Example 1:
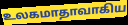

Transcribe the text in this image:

உலகமாதாவாகிய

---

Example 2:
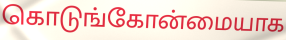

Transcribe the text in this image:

கொடுங்கோன்மையாக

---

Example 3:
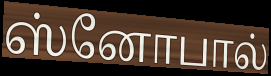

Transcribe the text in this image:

ஸ்னோபால்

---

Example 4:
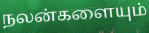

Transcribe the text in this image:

நலன்களையும்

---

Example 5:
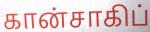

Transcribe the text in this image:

கான்சாகிப்